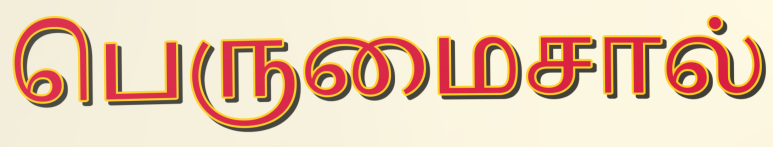
பெருமைசால்